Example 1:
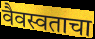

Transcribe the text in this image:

वैवस्वताचा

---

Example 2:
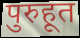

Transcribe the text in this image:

पुरुहूत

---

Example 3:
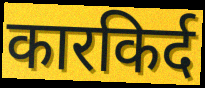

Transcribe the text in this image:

कारकिर्द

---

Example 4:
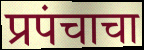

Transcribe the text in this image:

प्रपंचाचा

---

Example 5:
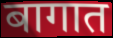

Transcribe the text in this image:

बागात